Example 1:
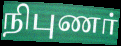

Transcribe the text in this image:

நிபுணர்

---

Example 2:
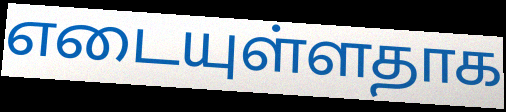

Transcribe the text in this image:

எடையுள்ளதாக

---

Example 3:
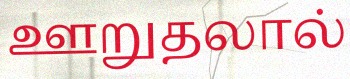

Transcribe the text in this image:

ஊறுதலால்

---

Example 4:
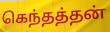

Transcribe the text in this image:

கெந்தத்தன்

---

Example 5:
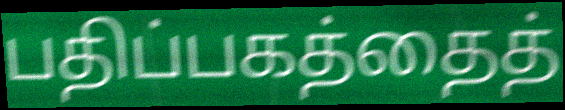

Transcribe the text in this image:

பதிப்பகத்தைத்